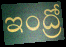
ఇంద్రో